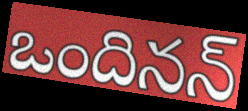
ఒందినన్